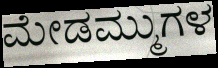
ಮೇಡಮ್ಮುಗಳ